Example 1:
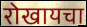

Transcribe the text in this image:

रोखायचा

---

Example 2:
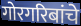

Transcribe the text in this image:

गोरगरिबांचे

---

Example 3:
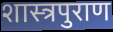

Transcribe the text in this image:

शास्त्रपुराण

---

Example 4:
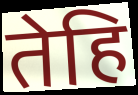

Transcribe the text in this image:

तेहि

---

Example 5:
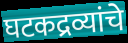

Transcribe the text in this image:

घटकद्रव्यांचे